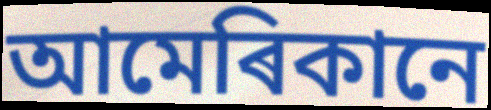
আমেৰিকানে